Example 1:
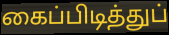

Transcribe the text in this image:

கைப்பிடித்துப்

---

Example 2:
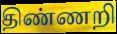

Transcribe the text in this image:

திண்ணறி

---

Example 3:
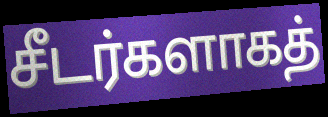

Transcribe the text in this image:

சீடர்களாகத்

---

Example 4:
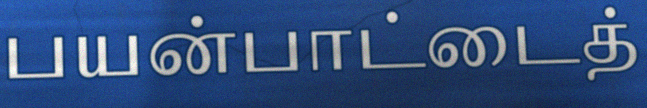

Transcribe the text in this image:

பயன்பாட்டைத்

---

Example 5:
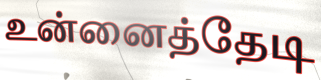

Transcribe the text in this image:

உன்னைத்தேடி